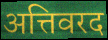
अत्तिवरद